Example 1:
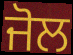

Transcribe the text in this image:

ਜੋਲ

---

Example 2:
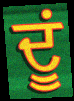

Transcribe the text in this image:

ਦੂਂ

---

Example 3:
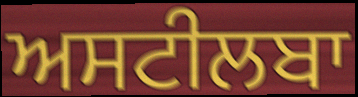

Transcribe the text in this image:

ਅਸਟੀਲਬਾ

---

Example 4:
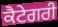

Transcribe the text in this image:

ਕੈਟੇਗਰੀ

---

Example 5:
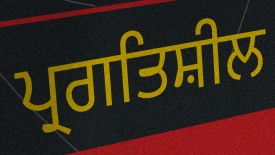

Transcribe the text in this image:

ਪ੍ਰਗਤਿਸ਼ੀਲ